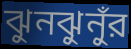
ঝুনঝুনুঁর